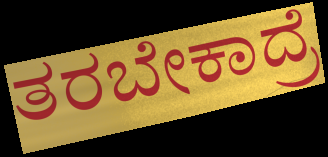
ತರಬೇಕಾದ್ರೆ